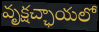
వృక్షచ్ఛాయలో